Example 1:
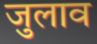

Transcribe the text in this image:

जुलाव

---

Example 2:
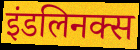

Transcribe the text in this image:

इंडलिनक्स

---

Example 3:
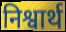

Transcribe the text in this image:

निश्वार्थ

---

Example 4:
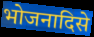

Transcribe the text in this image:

भोजनादिसे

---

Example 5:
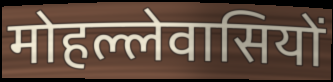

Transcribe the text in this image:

मोहल्लेवासियों